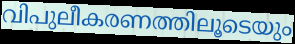
വിപുലീകരണത്തിലൂടെയും